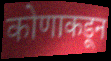
कोणाकडून